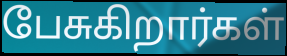
பேசுகிறார்கள்